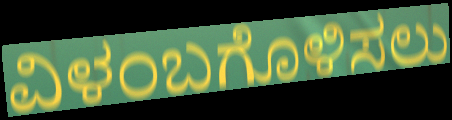
ವಿಳಂಬಗೊಳಿಸಲು